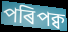
পৰিপক্ব